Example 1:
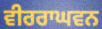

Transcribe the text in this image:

ਵੀਰਰਾਘਵਨ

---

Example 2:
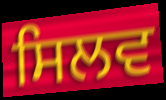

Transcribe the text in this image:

ਸਿਲਵ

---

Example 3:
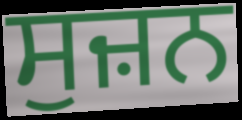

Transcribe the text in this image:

ਸੁਜ਼ਨ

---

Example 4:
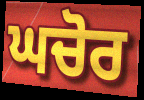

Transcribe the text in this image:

ਘਚੋਰ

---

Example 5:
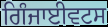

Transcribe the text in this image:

ਗਿੰਜਾਈਵਟਸ